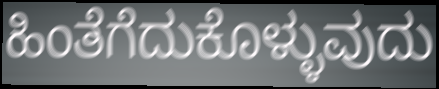
ಹಿಂತೆಗೆದುಕೊಳ್ಳುವುದು